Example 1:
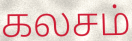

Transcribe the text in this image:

கலசம்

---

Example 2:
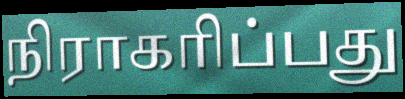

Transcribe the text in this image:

நிராகரிப்பது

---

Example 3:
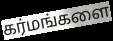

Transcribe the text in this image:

கர்மங்களை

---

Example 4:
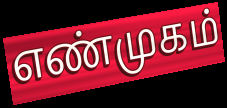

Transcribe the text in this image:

எண்முகம்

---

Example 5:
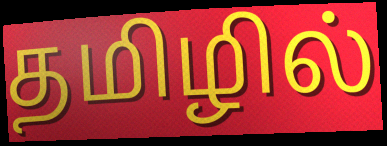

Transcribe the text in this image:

தமிழில்